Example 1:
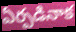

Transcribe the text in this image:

ఏర్పడినాక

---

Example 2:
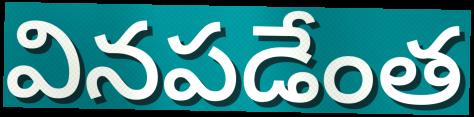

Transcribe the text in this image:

వినపడేంత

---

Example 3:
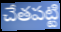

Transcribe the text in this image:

చేతపట్టి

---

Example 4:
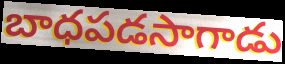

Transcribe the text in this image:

బాధపడసాగాడు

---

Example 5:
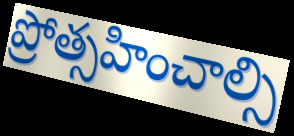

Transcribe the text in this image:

ప్రోత్సహించాల్సి